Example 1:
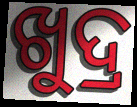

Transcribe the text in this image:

ଖୁଦ୍ର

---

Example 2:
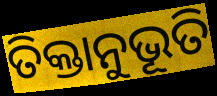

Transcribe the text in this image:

ତିକ୍ତାନୁଭୂତି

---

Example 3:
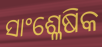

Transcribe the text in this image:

ସାଂଶ୍ଳେଷିକ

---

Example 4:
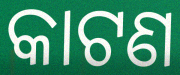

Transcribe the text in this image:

କାଟଣ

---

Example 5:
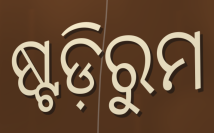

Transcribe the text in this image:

ଷ୍ଟଡ଼ିରୁମ